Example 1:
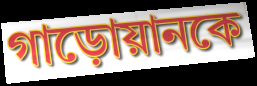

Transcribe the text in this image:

গাড়োয়ানকে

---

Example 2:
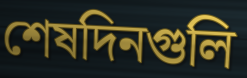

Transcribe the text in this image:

শেষদিনগুলি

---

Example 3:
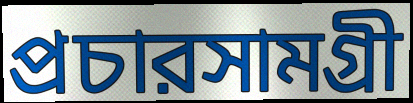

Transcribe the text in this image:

প্রচারসামগ্রী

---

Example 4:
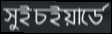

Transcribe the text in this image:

সুইচইয়ার্ডে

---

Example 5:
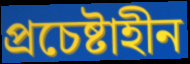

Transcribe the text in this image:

প্রচেষ্টাহীন